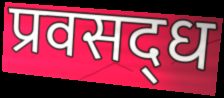
प्रवसद्ध